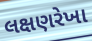
લક્ષણરેખા